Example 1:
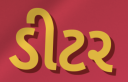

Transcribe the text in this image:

ડીટર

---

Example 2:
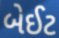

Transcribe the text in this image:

બેઈટ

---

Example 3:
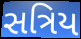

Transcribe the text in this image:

સત્રિય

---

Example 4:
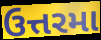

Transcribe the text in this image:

ઉત્તરમા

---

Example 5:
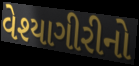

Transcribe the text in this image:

વેશ્યાગીરીનો